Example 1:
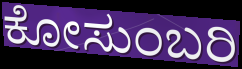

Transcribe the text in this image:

ಕೋಸುಂಬರಿ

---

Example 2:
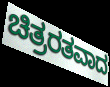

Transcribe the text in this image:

ಚಿತ್ರರತವಾದ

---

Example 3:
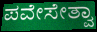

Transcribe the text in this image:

ಪವೇಸೇತ್ವಾ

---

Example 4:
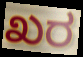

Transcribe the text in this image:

ಖರ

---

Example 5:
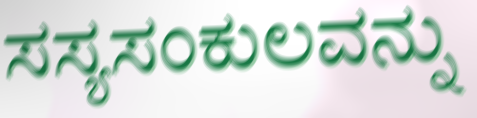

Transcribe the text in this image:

ಸಸ್ಯಸಂಕುಲವನ್ನು